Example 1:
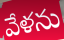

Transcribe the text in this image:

వేళను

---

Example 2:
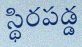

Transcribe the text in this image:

స్థిరపడ్డ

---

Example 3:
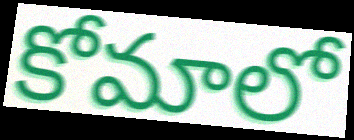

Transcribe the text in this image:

కోమాలో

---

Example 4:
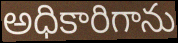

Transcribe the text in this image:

అధికారిగాను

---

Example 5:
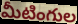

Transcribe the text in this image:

మీటింగుల